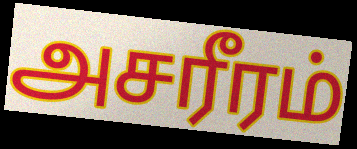
அசரீரம்